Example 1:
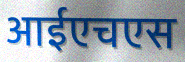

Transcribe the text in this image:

आईएचएस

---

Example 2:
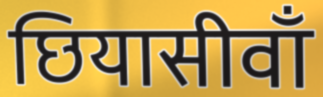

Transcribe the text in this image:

छियासीवाँ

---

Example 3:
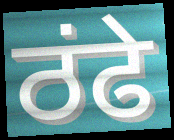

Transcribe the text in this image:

ठंढे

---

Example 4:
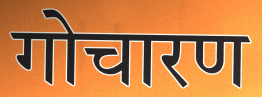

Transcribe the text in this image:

गोचारण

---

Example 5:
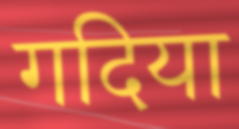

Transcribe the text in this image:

गदिया